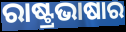
ରାଷ୍ଟ୍ରଭାଷାର